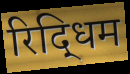
रिद्धिम